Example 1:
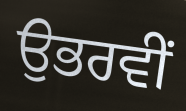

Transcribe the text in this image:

ਉਭਰਵੀਂ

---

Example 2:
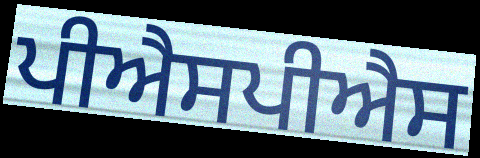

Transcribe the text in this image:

ਪੀਐਸਪੀਐਸ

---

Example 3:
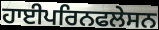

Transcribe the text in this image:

ਹਾਈਪਰਿਨਫਲੇਸਨ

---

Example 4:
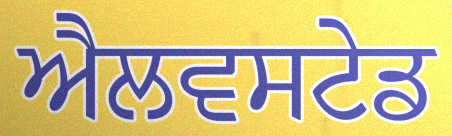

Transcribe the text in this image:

ਐਲਵਸਟੇਡ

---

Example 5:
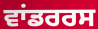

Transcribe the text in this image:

ਵਾਂਡਰਰਸ